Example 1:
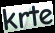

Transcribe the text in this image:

krte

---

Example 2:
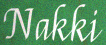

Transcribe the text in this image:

Nakki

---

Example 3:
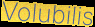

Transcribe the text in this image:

Volubilis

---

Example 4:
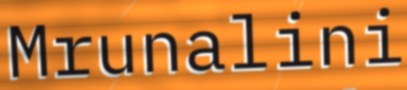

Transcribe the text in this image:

Mrunalini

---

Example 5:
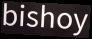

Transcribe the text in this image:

bishoy